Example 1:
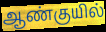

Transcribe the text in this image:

ஆண்குயில்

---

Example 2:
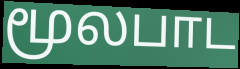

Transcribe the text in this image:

மூலபாட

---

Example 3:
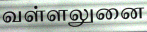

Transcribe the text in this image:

வள்ளலுனை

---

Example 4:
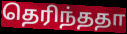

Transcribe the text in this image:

தெரிந்ததா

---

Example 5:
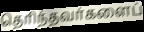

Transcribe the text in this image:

தெரிந்தவர்களைப்